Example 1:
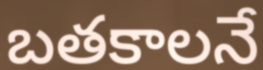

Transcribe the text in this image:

బతకాలనే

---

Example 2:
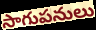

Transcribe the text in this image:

సాగుపనులు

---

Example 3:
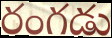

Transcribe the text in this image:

రంగడు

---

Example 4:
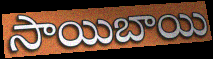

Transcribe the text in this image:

సాయిబాయి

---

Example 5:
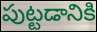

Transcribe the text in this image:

పుట్టడానికి